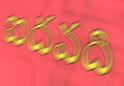
ఐదవది